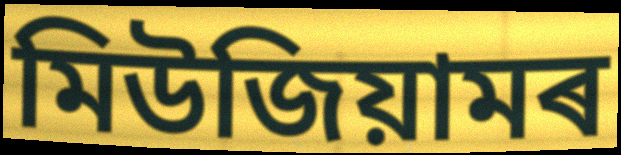
মিউজিয়ামৰ